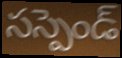
సస్పెండ్